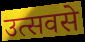
उत्सवसे